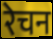
रेचन